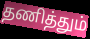
தணித்தும்